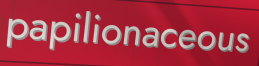
papilionaceous